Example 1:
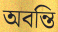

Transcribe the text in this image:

অবন্তি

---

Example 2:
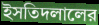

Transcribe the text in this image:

ইসতিদলালের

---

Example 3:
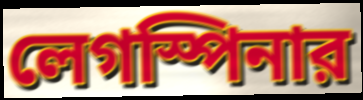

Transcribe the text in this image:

লেগস্পিনার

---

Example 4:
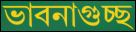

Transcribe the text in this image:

ভাবনাগুচ্ছ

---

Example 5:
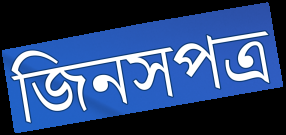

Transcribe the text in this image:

জিনসপত্র